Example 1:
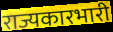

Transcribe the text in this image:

राज्यकारभारी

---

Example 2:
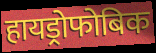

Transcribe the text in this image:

हायड्रोफोबिक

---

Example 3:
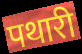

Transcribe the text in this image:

पथारी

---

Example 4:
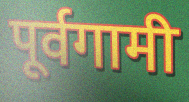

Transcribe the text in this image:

पूर्वगामी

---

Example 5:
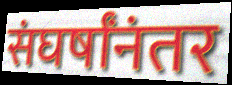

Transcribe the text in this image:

संघर्षांनंतर